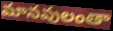
మానవులంతా